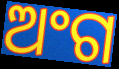
ଅଂଗ